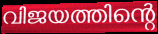
വിജയത്തിന്റെ